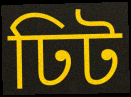
ঢিট